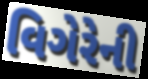
વિગેરેની